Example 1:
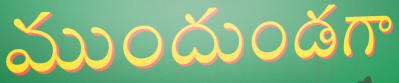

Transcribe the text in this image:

ముందుండగా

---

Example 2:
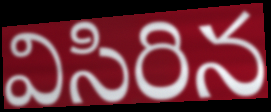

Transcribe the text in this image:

విసిరిన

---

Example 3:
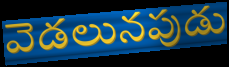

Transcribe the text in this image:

వెడలునపుడు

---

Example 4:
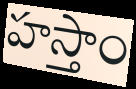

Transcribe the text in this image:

హస్తాం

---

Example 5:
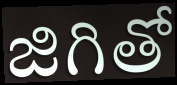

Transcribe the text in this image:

జిగితో